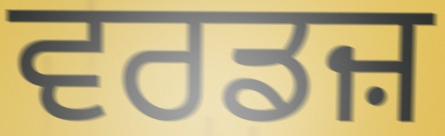
ਵਰਡਜ਼